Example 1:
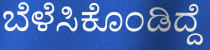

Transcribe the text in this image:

ಬೆಳೆಸಿಕೊಂಡಿದ್ದೆ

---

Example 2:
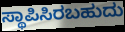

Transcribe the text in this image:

ಸ್ಥಾಪಿಸಿರಬಹುದು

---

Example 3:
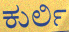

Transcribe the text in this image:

ಕುರ್ಲಿ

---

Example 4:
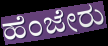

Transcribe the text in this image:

ಹೆಂಜೇರು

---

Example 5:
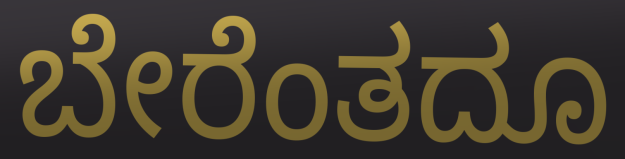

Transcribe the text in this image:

ಬೇರೆಂತದೂ